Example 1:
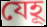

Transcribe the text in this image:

যেহূ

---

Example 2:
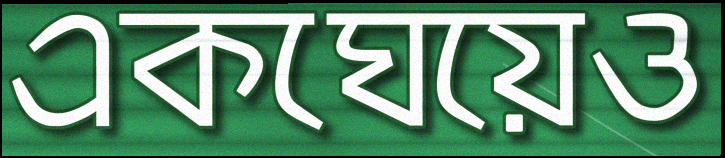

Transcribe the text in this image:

একঘেয়েও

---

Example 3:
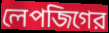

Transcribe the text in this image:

লেপজিগের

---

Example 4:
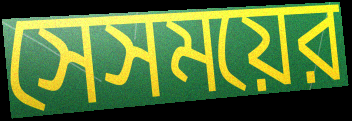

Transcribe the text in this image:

সেসময়ের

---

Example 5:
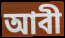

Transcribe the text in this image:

আবী